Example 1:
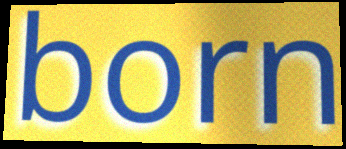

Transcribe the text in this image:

born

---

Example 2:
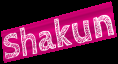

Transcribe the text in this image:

Shakun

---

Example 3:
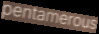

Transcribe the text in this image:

pentamerous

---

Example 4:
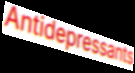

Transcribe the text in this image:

Antidepressants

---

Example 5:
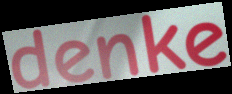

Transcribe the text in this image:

denke